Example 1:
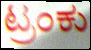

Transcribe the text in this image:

ಟ್ರಂಕು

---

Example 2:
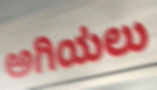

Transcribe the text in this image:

ಅಗಿಯಲು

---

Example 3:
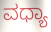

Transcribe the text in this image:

ವಧ್ಯಾ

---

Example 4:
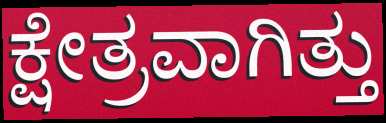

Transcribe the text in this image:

ಕ್ಷೇತ್ರವಾಗಿತ್ತು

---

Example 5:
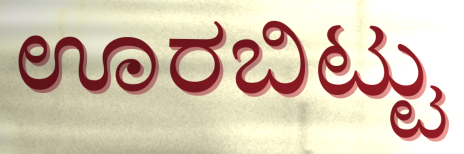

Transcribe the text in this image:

ಊರಬಿಟ್ಟು